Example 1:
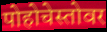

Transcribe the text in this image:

पोहोचेस्तोवर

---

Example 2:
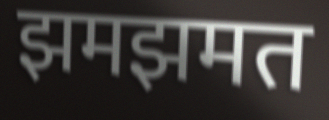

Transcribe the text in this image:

झमझमत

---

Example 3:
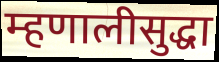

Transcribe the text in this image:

म्हणालीसुद्धा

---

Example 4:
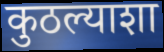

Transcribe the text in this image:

कुठल्याशा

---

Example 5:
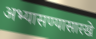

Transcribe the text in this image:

अभ्यासण्यासारखे